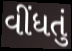
વીંધતું